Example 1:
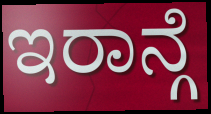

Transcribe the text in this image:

ಇರಾನ್ಗೆ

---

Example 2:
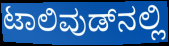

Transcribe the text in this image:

ಟಾಲಿವುಡ್‌ನಲ್ಲಿ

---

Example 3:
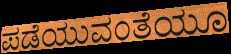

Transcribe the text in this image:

ಪಡೆಯುವಂತೆಯೂ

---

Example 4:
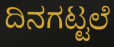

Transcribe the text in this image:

ದಿನಗಟ್ಟಲೆ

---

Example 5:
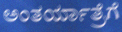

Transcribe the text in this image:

ಅಂತರ್ಯಾತ್ರೆಗೆ